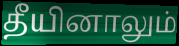
தீயினாலும்